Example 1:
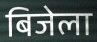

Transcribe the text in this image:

बिजेला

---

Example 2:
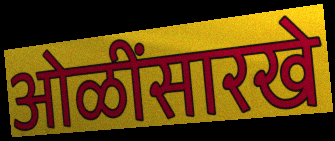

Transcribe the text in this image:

ओळींसारखे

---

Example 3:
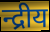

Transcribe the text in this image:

न्द्रीय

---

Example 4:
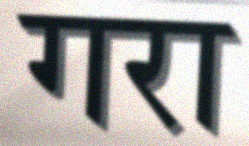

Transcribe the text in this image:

गरा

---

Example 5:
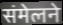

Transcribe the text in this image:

संमेलने